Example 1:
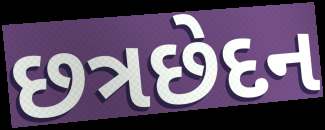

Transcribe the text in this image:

છત્રછેદન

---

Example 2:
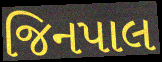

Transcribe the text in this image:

જિનપાલ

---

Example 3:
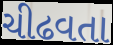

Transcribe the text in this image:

ચીઢવતા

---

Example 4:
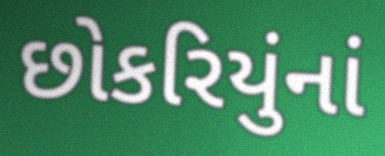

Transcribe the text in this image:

છોકરિયુંનાં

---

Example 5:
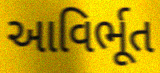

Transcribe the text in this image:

આવિર્ભૂત